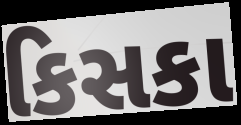
કિસકા